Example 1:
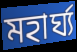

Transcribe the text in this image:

মহার্ঘ্য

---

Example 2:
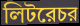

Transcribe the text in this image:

লিটরেচর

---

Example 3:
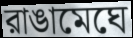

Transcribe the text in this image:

রাঙামেঘে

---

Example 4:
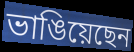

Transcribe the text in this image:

ভাঙিয়েছেন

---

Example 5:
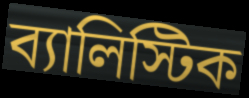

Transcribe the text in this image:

ব্যালিস্টিক